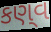
કણ્‌વ